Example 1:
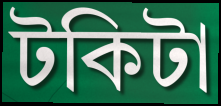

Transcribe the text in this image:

টকিটা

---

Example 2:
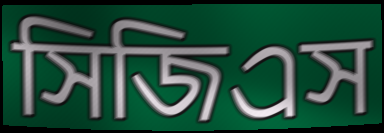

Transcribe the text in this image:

সিজিএস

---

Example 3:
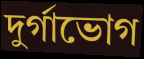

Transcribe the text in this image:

দুর্গাভোগ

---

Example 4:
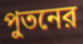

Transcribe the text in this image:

পুতনের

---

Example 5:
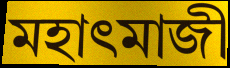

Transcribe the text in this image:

মহাৎমাজী